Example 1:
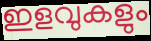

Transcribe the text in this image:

ഇളവുകളും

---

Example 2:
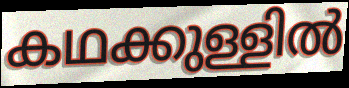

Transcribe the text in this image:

കഥക്കുള്ളിൽ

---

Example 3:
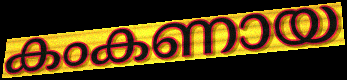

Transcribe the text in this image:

കംകണായ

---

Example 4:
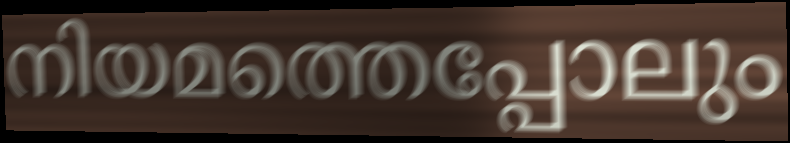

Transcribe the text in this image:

നിയമത്തെപ്പോലും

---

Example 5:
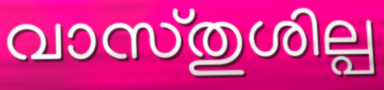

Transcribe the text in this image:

വാസ്തുശില്പ